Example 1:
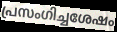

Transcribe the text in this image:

പ്രസംഗിച്ചശേഷം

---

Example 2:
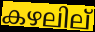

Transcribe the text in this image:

കഴലില്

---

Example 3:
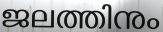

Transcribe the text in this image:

ജലത്തിനും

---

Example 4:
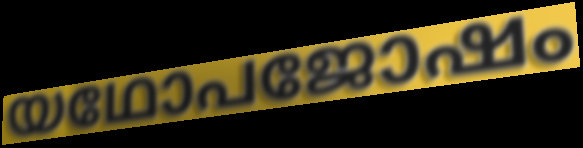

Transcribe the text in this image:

യഥോപജോഷം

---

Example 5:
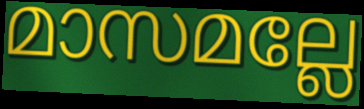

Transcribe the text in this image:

മാസമല്ലേ